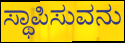
ಸ್ಥಾಪಿಸುವನು